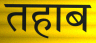
तहाब